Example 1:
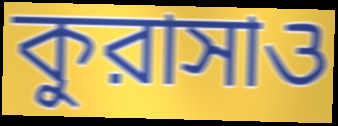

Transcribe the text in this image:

কুরাসাও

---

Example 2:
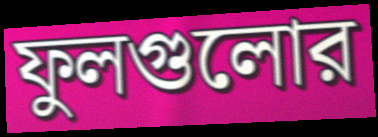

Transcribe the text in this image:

ফুলগুলোর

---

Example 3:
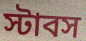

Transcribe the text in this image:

স্টাবস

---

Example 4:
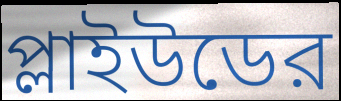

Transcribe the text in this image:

প্লাইউডের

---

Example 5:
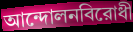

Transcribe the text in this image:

আন্দোলনবিরোধী